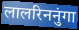
लालरिननुंगा